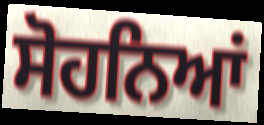
ਸੋਹਨਿਆਂ